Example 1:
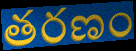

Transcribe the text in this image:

తరణం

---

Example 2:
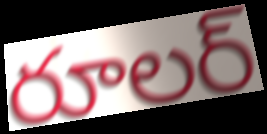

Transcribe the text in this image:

రూలర్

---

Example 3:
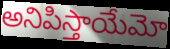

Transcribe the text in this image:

అనిపిస్తాయేమో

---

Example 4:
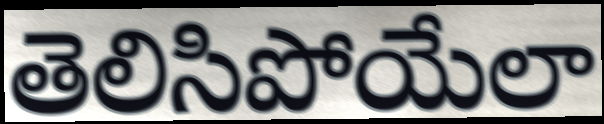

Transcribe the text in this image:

తెలిసిపోయేలా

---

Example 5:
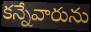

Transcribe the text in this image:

కన్నేవారును